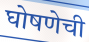
घोषणेची